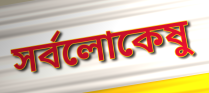
সর্বলোকেষু